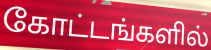
கோட்டங்களில்